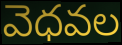
వెధవల